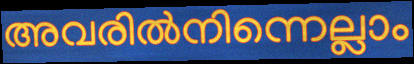
അവരിൽനിന്നെല്ലാം